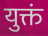
युक्तं